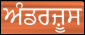
ਅੰਡਰਜ਼ੂਸ